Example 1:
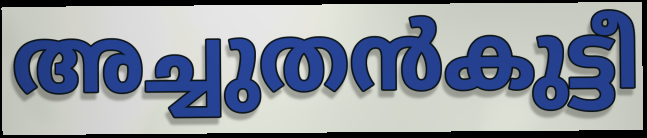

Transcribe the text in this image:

അച്ചുതൻകുട്ടീ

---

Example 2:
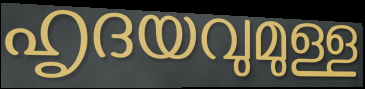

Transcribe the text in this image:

ഹൃദയവുമുള്ള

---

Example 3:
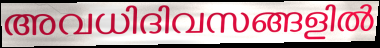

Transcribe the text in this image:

അവധിദിവസങ്ങളിൽ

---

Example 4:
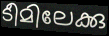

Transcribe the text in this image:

ടീമിലേക്കു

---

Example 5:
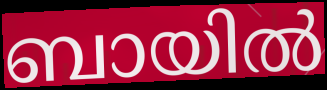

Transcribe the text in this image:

ബായിൽ